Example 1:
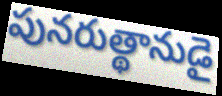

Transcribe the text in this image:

పునరుత్థానుడై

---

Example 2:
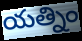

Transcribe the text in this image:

యత్నిం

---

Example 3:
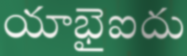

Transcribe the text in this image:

యాభైఐదు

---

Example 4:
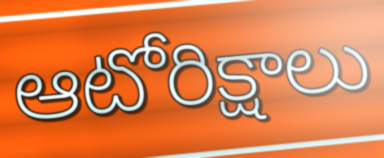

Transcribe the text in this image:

ఆటోరిక్షాలు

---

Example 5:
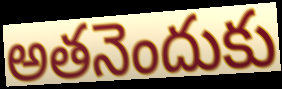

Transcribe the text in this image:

అతనెందుకు